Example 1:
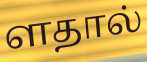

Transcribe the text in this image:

ளதால்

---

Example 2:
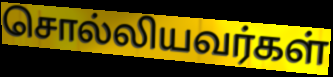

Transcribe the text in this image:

சொல்லியவர்கள்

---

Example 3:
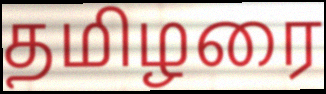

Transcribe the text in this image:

தமிழரை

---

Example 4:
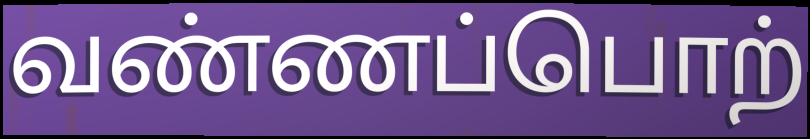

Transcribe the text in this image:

வண்ணப்பொற்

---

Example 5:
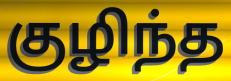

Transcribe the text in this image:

குழிந்த